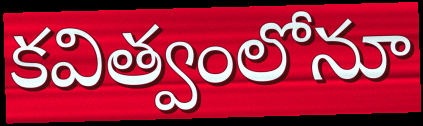
కవిత్వంలోనూ